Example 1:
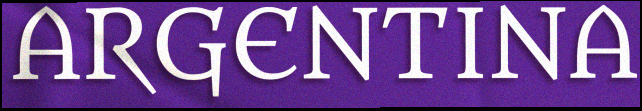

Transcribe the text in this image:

ARGENTINA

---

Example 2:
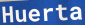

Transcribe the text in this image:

Huerta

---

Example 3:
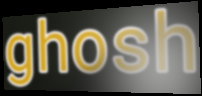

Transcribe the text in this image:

ghosh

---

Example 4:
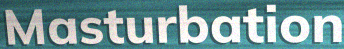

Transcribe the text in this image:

Masturbation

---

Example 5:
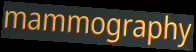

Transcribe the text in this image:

mammography